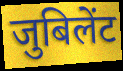
जुबिलेंट